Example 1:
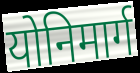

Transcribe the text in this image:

योनिमार्ग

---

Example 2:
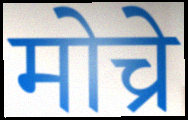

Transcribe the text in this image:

मोच्रे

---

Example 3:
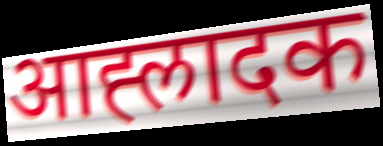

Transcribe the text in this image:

आह्लादक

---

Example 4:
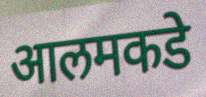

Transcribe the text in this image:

आलमकडे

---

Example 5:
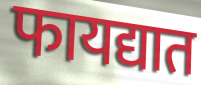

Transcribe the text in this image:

फायद्यात